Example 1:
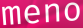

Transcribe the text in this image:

meno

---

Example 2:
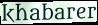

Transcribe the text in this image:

khabarer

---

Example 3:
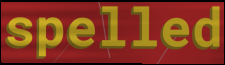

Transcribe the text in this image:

spelled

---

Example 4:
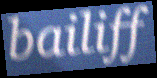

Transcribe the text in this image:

bailiff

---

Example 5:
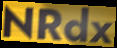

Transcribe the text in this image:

NRdx